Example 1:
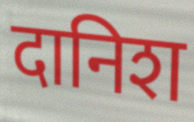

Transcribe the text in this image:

दानिश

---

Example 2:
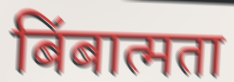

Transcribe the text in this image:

बिंबात्मता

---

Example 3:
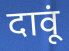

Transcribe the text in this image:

दावूं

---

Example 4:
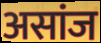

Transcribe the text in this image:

असांज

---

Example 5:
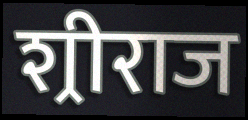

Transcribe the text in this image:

श्रीराज